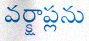
వర్క్షాప్లను